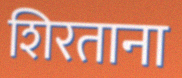
शिरताना